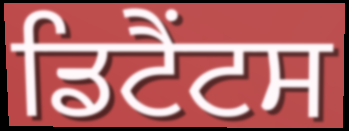
ਡਿਟੈਂਟਸ